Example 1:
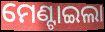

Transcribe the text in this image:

ମେଣ୍ଟାଇଲା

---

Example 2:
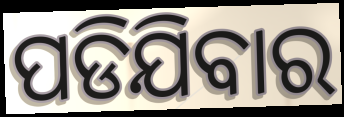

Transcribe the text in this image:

ପଡିଯିବାର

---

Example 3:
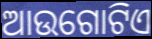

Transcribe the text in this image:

ଆଉଗୋଟିଏ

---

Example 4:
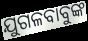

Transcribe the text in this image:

ଯୁଗଳବାବୁଙ୍କ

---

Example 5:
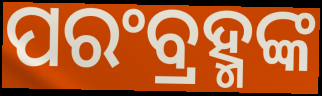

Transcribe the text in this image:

ପରଂବ୍ରହ୍ମଙ୍କ